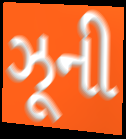
ઝૂની